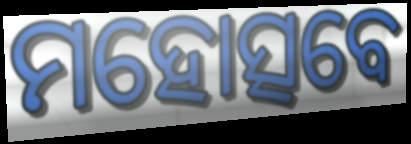
ମହୋତ୍ସବେ